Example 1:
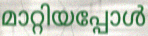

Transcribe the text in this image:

മാറ്റിയപ്പോൾ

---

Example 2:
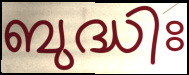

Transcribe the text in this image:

ബുദ്ധിഃ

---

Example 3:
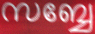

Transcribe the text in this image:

സബ്ബേ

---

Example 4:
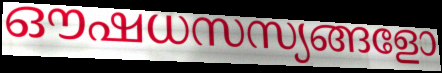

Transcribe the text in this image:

ഔഷധസസ്യങ്ങളോ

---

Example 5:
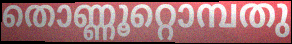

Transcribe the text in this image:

തൊണ്ണൂറ്റൊമ്പതു